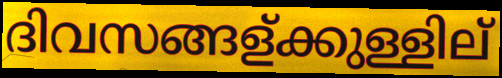
ദിവസങ്ങള്ക്കുള്ളില്